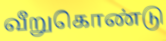
வீறுகொண்டு